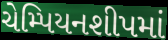
ચેમ્પિયનશીપમાં